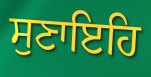
ਸੁਣਾਇਹਿ